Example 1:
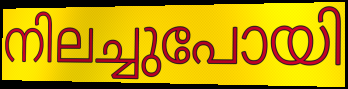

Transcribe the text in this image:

നിലച്ചുപോയി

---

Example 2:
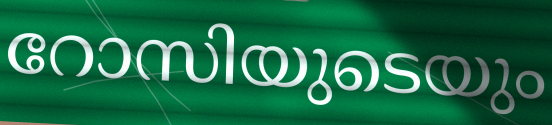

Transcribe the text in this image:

റോസിയുടെയും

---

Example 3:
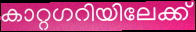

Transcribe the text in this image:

കാറ്റഗറിയിലേക്ക്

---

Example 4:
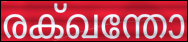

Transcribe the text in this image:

രക്ഖന്തോ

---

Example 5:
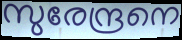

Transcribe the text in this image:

സുരേന്ദ്രനെ